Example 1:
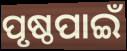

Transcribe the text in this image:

ପୃଷ୍ଠପାଇଁ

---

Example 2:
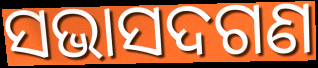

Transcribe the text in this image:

ସଭାସଦଗଣ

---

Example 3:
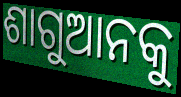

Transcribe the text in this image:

ଶାଗୁଆନକୁ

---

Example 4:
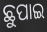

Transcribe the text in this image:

ଛୁପାଇ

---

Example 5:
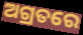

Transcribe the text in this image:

ଅଗ୍ରତରେ